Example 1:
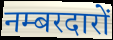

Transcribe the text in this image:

नम्बरदारों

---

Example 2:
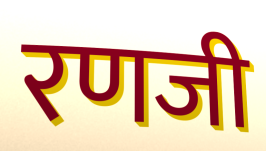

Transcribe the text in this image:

रणजी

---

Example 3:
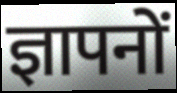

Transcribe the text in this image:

ज्ञापनों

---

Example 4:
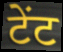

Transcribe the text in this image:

टेंट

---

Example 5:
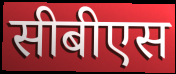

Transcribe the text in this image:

सीबीएस